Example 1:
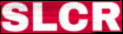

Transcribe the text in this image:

SLCR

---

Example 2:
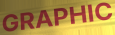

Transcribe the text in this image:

GRAPHIC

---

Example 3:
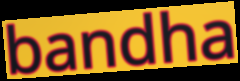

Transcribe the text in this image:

bandha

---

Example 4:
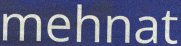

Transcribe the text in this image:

mehnat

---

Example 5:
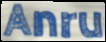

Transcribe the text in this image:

Anru